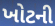
ખોટની